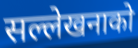
सल्लेखनाको